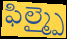
ఫిల్మ్పై